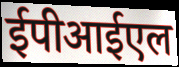
ईपीआईएल